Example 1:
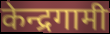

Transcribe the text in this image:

केन्द्रगामी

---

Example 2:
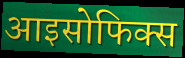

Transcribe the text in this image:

आइसोफिक्स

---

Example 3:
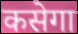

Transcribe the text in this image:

कसेगा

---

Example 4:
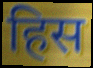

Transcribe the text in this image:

हिस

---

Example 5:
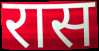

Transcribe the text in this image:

रास